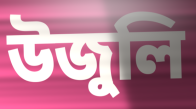
উজুলি